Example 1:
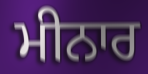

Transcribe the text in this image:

ਮੀਨਾਰ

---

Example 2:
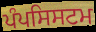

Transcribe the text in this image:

ਪੰਪਸਿਸਟਮ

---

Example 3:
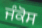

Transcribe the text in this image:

ਜੰਕੋਸ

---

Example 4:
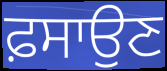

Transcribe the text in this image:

ਫ਼ਸਾਉਣ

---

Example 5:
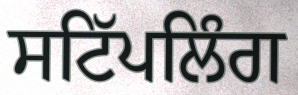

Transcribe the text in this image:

ਸਟਿੱਪਲਿੰਗ